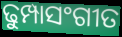
ଢୁମ୍ପାସଂଗୀତ